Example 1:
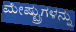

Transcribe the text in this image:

ಮೇಷ್ಟ್ರುಗಳನ್ನು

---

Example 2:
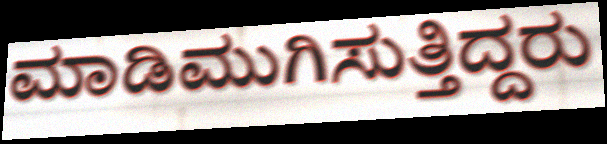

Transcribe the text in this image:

ಮಾಡಿಮುಗಿಸುತ್ತಿದ್ದರು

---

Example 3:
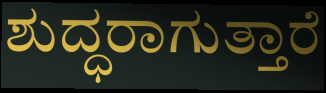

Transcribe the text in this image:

ಶುದ್ಧರಾಗುತ್ತಾರೆ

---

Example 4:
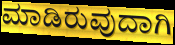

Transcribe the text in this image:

ಮಾಡಿರುವುದಾಗಿ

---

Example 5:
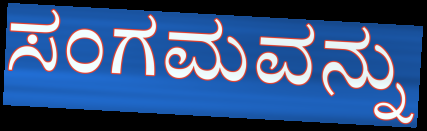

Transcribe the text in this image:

ಸಂಗಮವನ್ನು